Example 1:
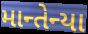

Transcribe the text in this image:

માન્તેન્યા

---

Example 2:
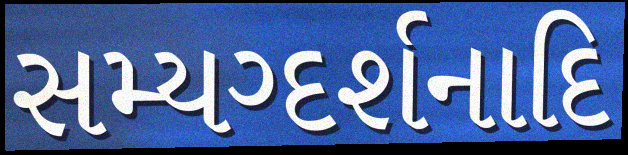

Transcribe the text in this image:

સમ્યગ્દર્શનાદિ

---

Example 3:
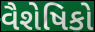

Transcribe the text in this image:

વૈશેષિકો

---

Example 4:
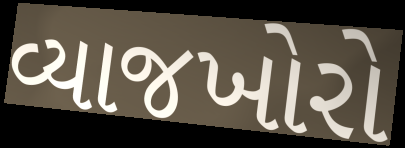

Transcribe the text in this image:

વ્યાજખોરો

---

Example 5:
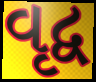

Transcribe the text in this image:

વૃદ્વ